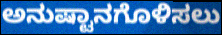
ಅನುಷ್ಟಾನಗೊಳಿಸಲು